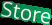
Store